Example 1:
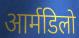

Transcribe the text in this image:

आर्मडिलो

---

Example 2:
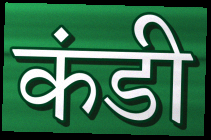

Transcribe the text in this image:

कंडी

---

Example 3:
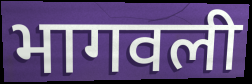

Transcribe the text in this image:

भागवली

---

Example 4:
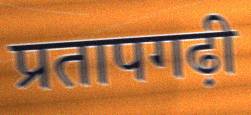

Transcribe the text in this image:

प्रतापगढ़ी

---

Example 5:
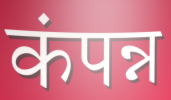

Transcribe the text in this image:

कंपन्न